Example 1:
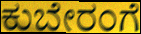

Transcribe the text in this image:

ಕುಬೇರಂಗೆ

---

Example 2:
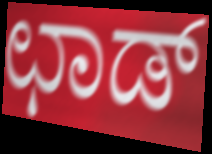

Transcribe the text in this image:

ಛಾಡ್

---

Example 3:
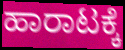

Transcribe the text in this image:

ಹಾರಾಟಕ್ಕೆ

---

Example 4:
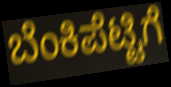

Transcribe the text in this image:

ಬೆಂಕಿಪೆಟ್ಟಿಗೆ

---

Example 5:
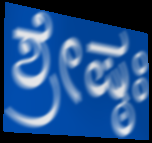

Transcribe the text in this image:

ಶ್ರೇಷ್ಠಃ